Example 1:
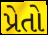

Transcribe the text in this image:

પ્રેતો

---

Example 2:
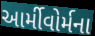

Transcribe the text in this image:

આર્મીવોર્મના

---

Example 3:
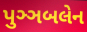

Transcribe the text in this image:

પુઞ્ઞબલેન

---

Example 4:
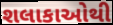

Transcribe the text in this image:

શલાકાઓથી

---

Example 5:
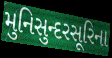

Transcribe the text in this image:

મુનિસુન્દરસૂરિના